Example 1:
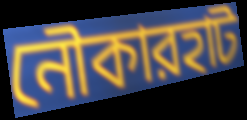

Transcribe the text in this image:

নৌকারহাট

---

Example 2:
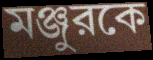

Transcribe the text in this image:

মঞ্জুরকে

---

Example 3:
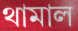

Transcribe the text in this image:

থামাল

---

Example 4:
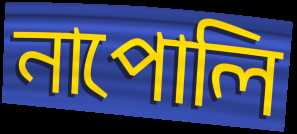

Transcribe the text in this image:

নাপোলি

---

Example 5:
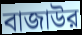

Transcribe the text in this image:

বাজাউর